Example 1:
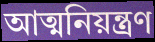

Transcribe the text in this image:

আত্মনিয়ন্ত্ৰণ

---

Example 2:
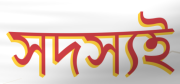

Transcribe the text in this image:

সদস্যই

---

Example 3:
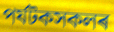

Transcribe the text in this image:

পৰ্যটকসকলৰ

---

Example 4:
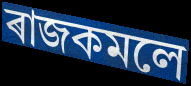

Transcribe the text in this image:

ৰাজকমলে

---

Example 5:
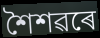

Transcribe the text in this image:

শৈশৱৰে